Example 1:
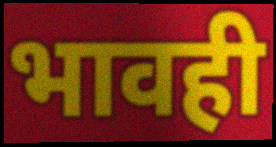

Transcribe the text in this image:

भावही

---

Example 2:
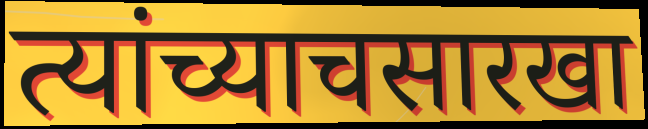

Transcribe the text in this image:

त्यांच्याचसारखा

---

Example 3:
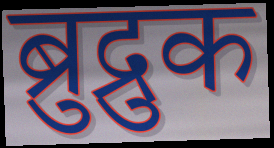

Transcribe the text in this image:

ब्रुद्रुक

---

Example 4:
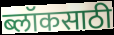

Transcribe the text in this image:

ब्लॉकसाठी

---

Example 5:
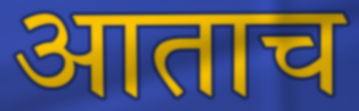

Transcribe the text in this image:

आताच